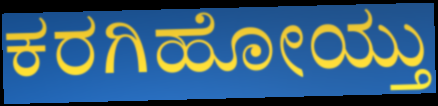
ಕರಗಿಹೋಯ್ತು